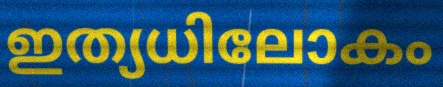
ഇത്യധിലോകം